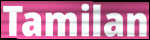
Tamilan